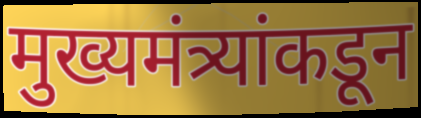
मुख्यमंत्र्यांकडून